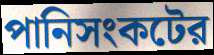
পানিসংকটের